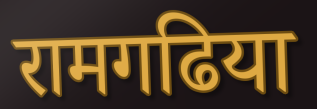
रामगढिया